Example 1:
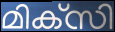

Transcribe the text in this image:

മിക്‌സി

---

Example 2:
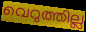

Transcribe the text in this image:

വെറുത്തില്ല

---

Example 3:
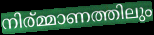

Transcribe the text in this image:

നിര്മ്മാണത്തിലും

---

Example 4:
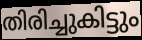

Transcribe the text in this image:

തിരിച്ചുകിട്ടും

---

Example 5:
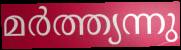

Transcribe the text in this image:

മർത്ത്യന്നു